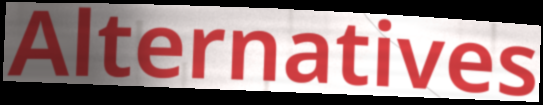
Alternatives